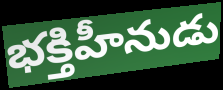
భక్తిహీనుడు